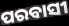
ପରବାସୀ